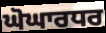
ਘੋਘਾਰਧਰ